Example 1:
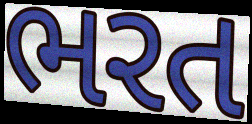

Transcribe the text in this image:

ભરત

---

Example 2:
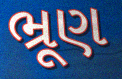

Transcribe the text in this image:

ભ્રૂણ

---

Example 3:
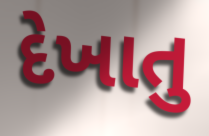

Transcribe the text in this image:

દેખાતુ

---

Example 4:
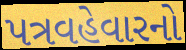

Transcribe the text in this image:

પત્રવહેવારનો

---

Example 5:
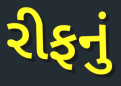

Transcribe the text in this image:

રીફનું